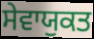
ਸੇਵਾਯੁਕਤ